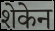
शेकेन